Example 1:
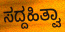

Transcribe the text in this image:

ಸದ್ದಹಿತ್ವಾ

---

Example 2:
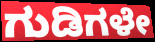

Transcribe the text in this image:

ಗುಡಿಗಳೇ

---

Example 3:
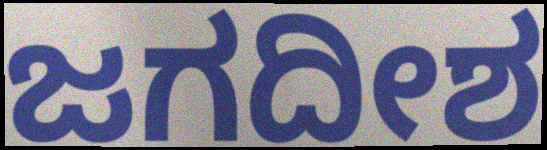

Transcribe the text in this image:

ಜಗದೀಶ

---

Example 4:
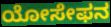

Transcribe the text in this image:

ಯೋಸೇಫನ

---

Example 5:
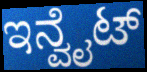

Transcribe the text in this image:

ಇನ್ವೈಟ್